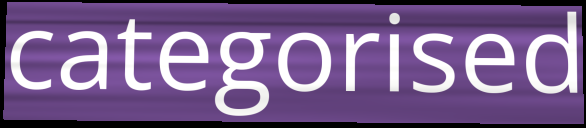
categorised